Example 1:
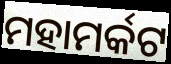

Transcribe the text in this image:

ମହାମର୍କଟ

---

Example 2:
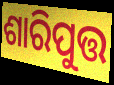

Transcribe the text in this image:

ଶାରିପୁତ୍ତ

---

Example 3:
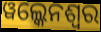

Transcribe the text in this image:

ୱଲ୍କେନଶ୍ୱର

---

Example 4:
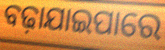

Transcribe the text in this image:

ବଢ଼ାଯାଇପାରେ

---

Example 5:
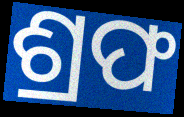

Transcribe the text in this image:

ଶ୍ରଫ